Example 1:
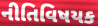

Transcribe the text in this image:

નીતિવિષયક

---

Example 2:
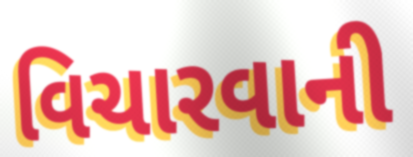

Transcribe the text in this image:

વિચારવાની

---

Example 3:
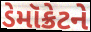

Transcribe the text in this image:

ડેમૉક્રેટને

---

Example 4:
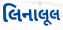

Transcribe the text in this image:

લિનાલૂલ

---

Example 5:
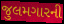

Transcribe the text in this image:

જુલમગારની